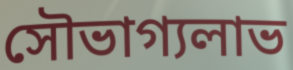
সৌভাগ্যলাভ